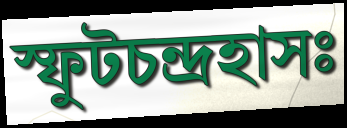
স্ফুটচন্দ্রহাসঃ